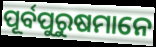
ପୂର୍ବପୁରୁଷମାନେ